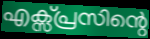
എക്സ്പ്രസിന്റെ